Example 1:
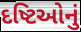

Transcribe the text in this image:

દષ્ટિઓનું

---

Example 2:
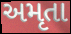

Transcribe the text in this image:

અમૃતા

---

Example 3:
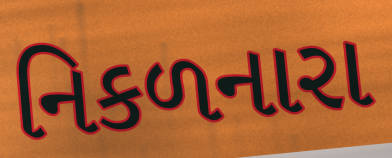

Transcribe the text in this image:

નિકળનારા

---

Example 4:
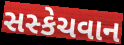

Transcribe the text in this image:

સસ્કેચવાન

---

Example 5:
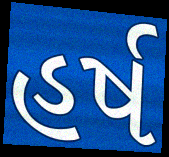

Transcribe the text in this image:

હર્ષ